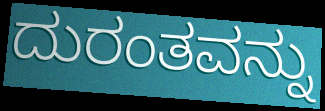
ದುರಂತವನ್ನು